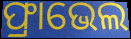
ଫ୍ରାଭେଲ